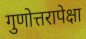
गुणोत्तरापेक्षा